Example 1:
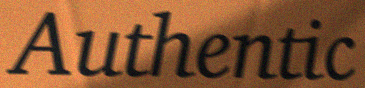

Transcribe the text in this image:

Authentic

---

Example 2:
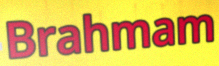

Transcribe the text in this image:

Brahmam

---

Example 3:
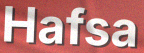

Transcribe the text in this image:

Hafsa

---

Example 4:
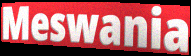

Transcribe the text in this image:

Meswania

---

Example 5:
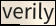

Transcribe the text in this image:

verily